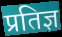
प्रतिज्ञ